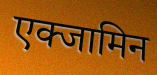
एक्जामिन